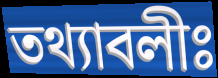
তথ্যাবলীঃ